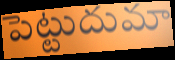
పెట్టుదుమా